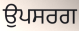
ਉਪਸਰਗ